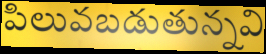
పిలువబడుతున్నవి